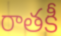
రాతకీ